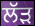
ਲੱੜ